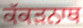
ਕੱਕੜਨਾਥ